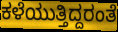
ಕಳೆಯುತ್ತಿದ್ದರಂತೆ